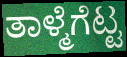
ತಾಳ್ಮೆಗೆಟ್ಟ